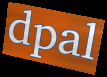
dpal